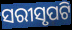
ସରୀସୃପଟି